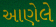
આણેલે